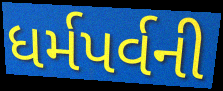
ધર્મપર્વની